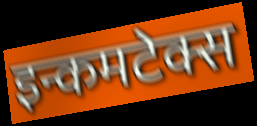
इन्कमटेक्स